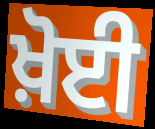
ਖ਼ੋਈ